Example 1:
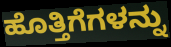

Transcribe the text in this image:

ಹೊತ್ತಿಗೆಗಳನ್ನು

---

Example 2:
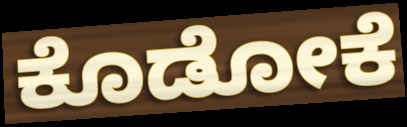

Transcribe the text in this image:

ಕೊಡೋಕೆ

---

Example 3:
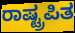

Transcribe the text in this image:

ರಾಷ್ಟ್ರಪಿತ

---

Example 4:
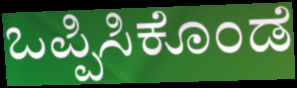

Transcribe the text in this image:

ಒಪ್ಪಿಸಿಕೊಂಡೆ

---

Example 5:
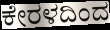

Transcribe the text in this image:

ಕೇರಳದಿಂದ